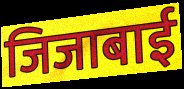
जिजाबाई